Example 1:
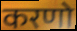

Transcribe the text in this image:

करणो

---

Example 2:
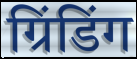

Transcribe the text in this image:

ग्रिंडिंग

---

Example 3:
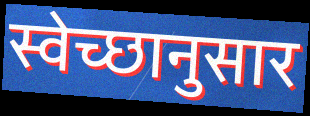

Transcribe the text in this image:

स्वेच्छानुसार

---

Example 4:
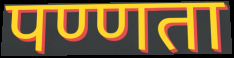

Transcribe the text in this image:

पण्णता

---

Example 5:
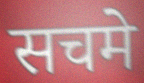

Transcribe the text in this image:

सचमे